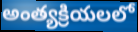
అంత్యక్రియలలో